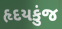
હૃદયકુંજ